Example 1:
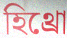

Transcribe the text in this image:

হিথ্রো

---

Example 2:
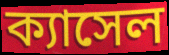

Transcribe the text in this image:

ক্যাসেল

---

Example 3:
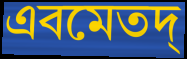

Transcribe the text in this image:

এবমেতদ্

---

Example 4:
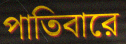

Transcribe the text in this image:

পাতিবারে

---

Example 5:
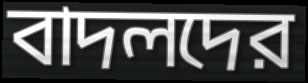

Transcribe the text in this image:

বাদলদের